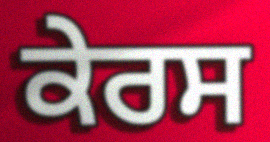
ਕੇਰਸ